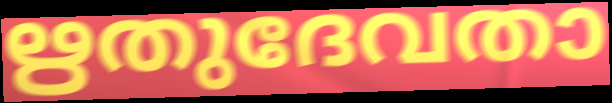
ഋതുദേവതാ